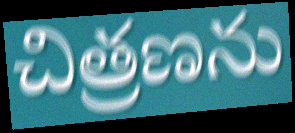
చిత్రణను